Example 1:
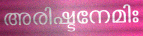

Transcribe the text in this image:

അരിഷ്ടനേമിഃ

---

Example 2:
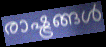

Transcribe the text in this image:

രാഷ്ട്രങ്ങൾ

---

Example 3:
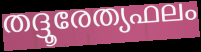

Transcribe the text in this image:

തദ്ദൂരേത്യഫലം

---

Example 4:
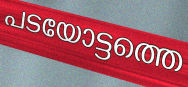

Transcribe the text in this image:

പടയോട്ടത്തെ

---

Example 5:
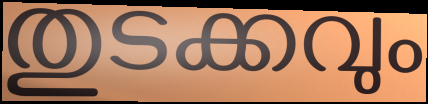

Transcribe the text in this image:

തുടക്കവും